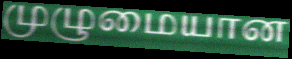
முழுமையான